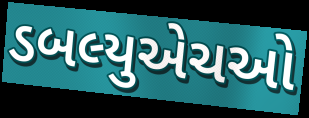
ડબલ્યુએચઓ